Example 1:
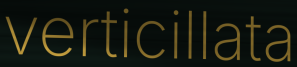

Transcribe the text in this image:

verticillata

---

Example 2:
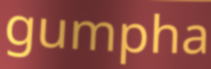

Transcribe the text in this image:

gumpha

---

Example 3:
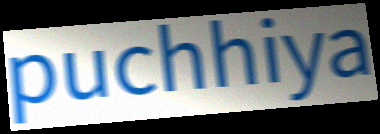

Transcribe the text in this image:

puchhiya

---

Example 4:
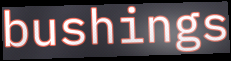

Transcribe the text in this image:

bushings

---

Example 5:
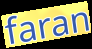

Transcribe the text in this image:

faran